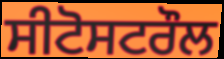
ਸੀਟੋਸਟਰੌਲ